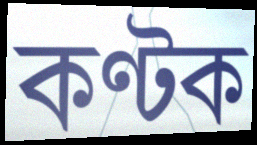
কণ্টক